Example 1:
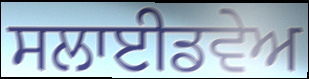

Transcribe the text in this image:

ਸਲਾਈਡਵੇਅ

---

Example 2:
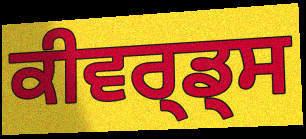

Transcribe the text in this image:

ਕੀਵਰ੍ਡ੍ਸ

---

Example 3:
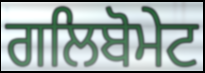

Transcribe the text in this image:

ਗਲਿਬੋਮੇਟ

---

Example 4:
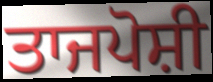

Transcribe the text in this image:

ਤਾਜਪੋਸ਼ੀ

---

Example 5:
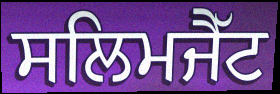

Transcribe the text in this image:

ਸਲਿਮਜੈੱਟ